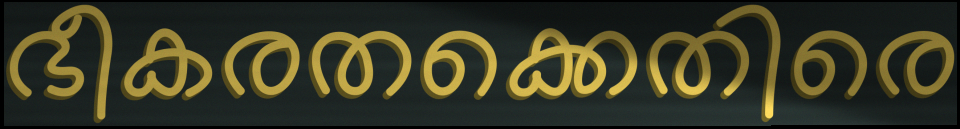
ഭീകരതക്കെതിരെ